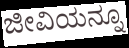
ಜೀವಿಯನ್ನೂ